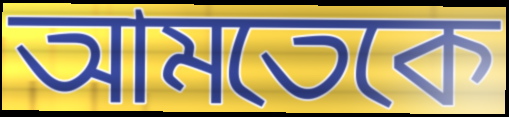
আমতেকে